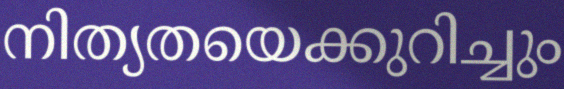
നിത്യതയെക്കുറിച്ചും